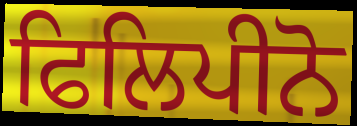
ਫਿਲਿਪੀਨੋ